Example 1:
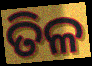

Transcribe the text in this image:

ତିଳ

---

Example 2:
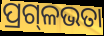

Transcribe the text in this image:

ପ୍ରଗ୍‍ଳଭତା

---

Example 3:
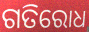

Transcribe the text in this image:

ଗତିରୋଧ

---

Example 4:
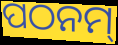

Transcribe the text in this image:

ପଠନମ୍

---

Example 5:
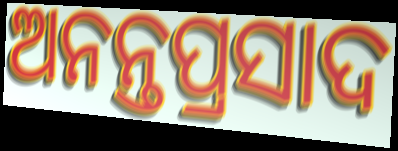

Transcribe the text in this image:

ଅନନ୍ତପ୍ରସାଦ